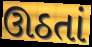
ઊઠતાં